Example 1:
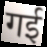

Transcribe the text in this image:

गई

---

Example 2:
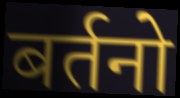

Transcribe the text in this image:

बर्तनो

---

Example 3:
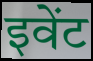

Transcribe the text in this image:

इवेंट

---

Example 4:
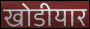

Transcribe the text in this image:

खोडीयार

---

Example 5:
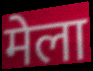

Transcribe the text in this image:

मेला